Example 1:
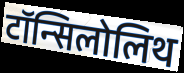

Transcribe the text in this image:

टॉन्सिलोलिथ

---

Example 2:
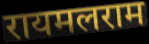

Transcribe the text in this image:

रायमलराम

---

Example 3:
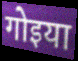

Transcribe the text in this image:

गोइया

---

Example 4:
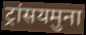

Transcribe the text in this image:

ट्रांसयमुना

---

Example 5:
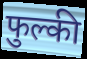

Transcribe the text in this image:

फुल्की